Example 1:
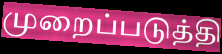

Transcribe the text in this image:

முறைப்படுத்தி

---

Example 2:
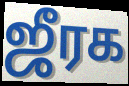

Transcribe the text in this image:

ஜீரக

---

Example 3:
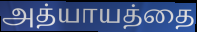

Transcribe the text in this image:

அத்யாயத்தை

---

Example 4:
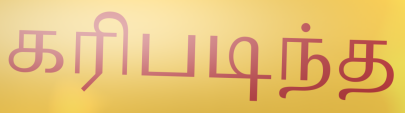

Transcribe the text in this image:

கரிபடிந்த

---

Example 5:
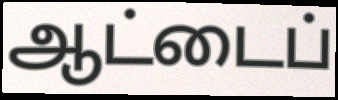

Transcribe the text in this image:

ஆட்டைப்